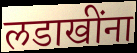
लडाखींना